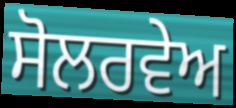
ਸੋਲਰਵੇਅ